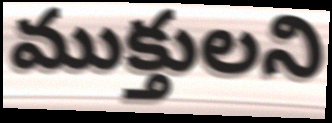
ముక్తులని